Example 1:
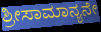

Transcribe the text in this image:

ಶ್ರೀಸಾಮಾನ್ಯನೇ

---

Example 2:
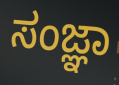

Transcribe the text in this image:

ಸಂಜ್ಞಾ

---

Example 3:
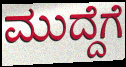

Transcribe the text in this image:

ಮುದ್ದೆಗೆ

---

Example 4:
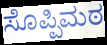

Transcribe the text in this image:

ಸೊಪ್ಪಿಮಠ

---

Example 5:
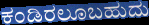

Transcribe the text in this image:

ಕಂಡಿರಲೂಬಹುದು